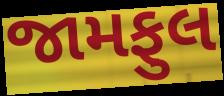
જામફુલ